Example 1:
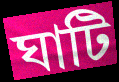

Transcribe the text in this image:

ঘাটি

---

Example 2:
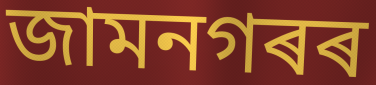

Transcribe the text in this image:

জামনগৰৰ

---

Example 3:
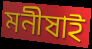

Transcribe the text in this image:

মনীষাই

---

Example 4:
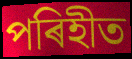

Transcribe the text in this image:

পৰিহীত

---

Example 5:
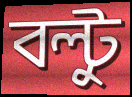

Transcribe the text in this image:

বল্টু